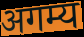
अगम्य